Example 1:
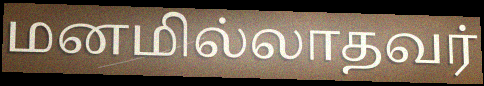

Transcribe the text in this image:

மனமில்லாதவர்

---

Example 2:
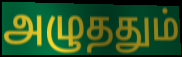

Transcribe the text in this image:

அழுததும்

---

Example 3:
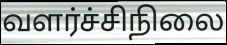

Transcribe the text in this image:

வளர்ச்சிநிலை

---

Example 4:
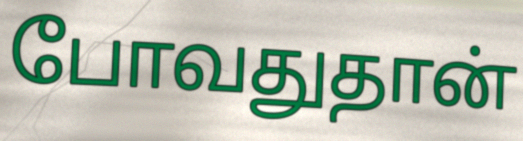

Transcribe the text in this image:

போவதுதான்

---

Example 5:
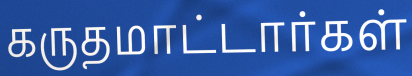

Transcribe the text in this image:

கருதமாட்டார்கள்